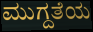
ಮುಗ್ದತೆಯ